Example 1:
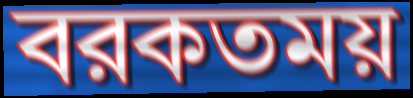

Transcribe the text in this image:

বরকতময়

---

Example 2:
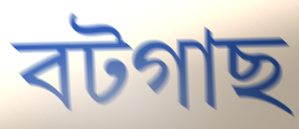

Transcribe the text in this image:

বটগাছ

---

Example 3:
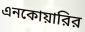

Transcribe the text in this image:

এনকোয়ারির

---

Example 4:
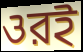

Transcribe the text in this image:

ওরই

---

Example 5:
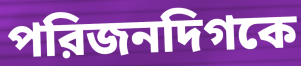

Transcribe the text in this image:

পরিজনদিগকে